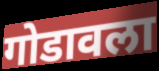
गोडावला